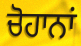
ਚੋਹਾਨਾਂ